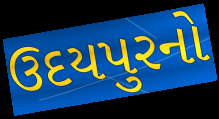
ઉદયપુરનો